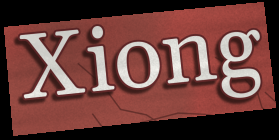
Xiong